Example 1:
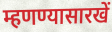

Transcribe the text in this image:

म्हणण्यासारखें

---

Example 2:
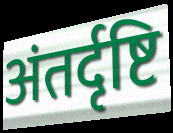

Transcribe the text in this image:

अंतर्दृष्टि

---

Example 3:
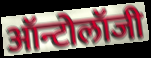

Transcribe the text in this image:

ऑन्टोलॉजी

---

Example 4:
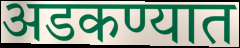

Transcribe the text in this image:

अडकण्यात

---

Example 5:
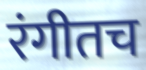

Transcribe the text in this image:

रंगीतच